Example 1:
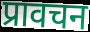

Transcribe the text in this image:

प्रावचन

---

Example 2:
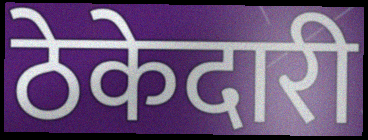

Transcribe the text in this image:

ठेकेदारी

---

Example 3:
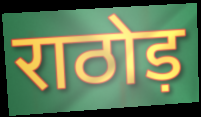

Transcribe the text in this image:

राठोड़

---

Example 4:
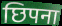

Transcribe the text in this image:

छिपना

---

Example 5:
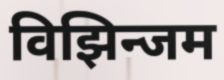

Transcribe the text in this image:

विझिन्जम